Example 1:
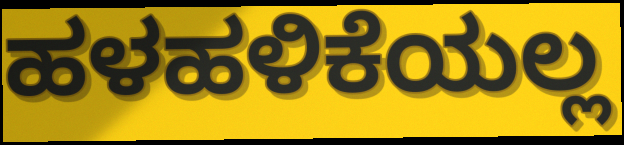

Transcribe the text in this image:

ಹಳಹಳಿಕೆಯಲ್ಲ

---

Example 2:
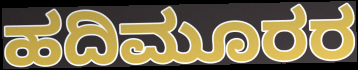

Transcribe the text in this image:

ಹದಿಮೂರರ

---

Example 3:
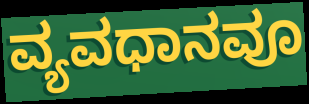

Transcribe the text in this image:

ವ್ಯವಧಾನವೂ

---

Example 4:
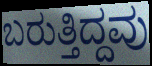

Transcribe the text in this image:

ಬರುತ್ತಿದ್ದವು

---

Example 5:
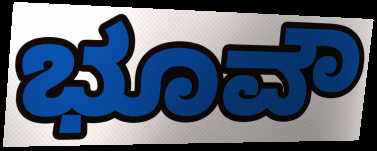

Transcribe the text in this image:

ಭೂವೌ